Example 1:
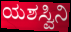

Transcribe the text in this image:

ಯಶಸ್ವಿನಿ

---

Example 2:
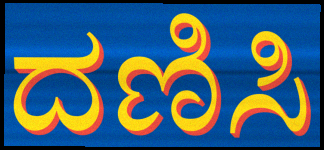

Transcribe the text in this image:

ದಣಿಸಿ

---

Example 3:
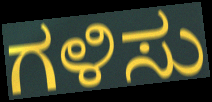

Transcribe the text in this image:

ಗಳಿಸು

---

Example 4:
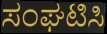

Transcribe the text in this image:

ಸಂಘಟಿಸಿ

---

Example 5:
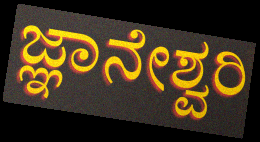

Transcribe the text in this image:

ಜ್ಞಾನೇಶ್ವರಿ